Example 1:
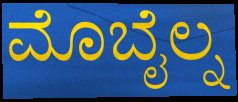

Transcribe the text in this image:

ಮೊಬೈಲ್ನ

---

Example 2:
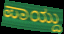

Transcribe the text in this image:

ಪಾಯ್ದು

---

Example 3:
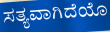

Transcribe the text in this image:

ಸತ್ಯವಾಗಿದೆಯೊ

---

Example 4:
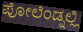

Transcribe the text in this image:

ಪೋಲೆಂಡ್ನಲ್ಲಿ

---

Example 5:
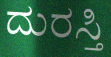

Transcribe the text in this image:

ದುರಸ್ತಿ